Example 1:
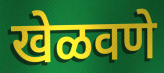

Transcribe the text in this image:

खेळवणे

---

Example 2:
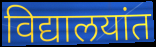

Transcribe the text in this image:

विद्यालयांत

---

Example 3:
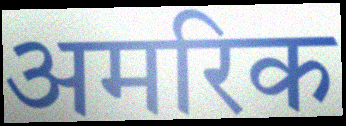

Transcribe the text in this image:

अमरिक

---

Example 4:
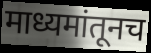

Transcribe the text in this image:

माध्यमांतूनच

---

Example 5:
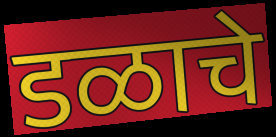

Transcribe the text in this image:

डळाचे